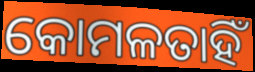
କୋମଳତାହିଁ